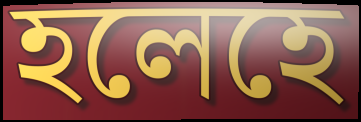
হলেহে